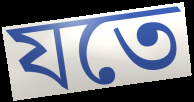
যতে